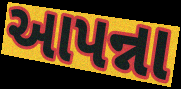
આપન્ના